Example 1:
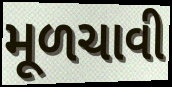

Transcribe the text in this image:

મૂળચાવી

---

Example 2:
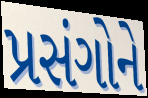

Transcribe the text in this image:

પ્રસંગોને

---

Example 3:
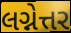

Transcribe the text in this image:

લગ્નેત્તર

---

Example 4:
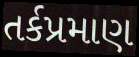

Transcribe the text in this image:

તર્કપ્રમાણ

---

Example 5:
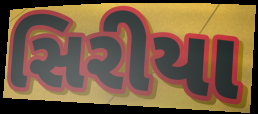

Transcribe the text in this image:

સિરીયા